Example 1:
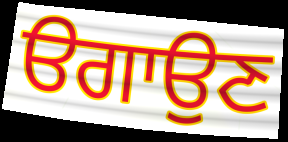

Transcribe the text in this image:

ੳਗਾਉਣ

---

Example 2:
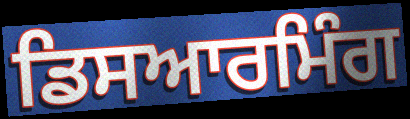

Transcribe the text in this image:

ਡਿਸਆਰਮਿੰਗ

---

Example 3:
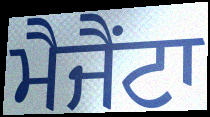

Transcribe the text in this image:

ਮੈਜੈਂਟਾ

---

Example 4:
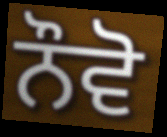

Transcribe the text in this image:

ਨੌਵੋ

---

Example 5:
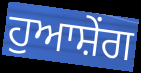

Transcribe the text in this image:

ਹੁਆਸ਼ੇਂਗ